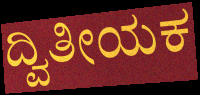
ದ್ವಿತೀಯಕ